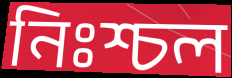
নিঃশ্চল